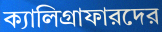
ক্যালিগ্রাফারদের